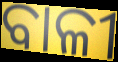
ବାଳୀ